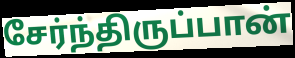
சேர்ந்திருப்பான்